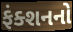
ફંક્શનનો